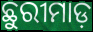
ଛୁରୀମାଡ଼